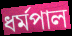
ধৰ্মপাল